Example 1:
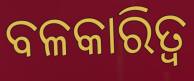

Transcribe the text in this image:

ବଳକାରିତ୍ୱ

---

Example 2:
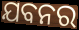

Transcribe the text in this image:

ଯବନର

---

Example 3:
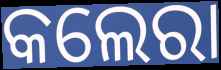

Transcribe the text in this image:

କଲେରା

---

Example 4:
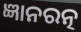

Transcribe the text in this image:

ଜ୍ଞାନରତ୍ନ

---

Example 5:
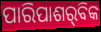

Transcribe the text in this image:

ପାରିପାଶର୍‌ବିକ